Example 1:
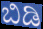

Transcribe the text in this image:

ಬಿಡಿ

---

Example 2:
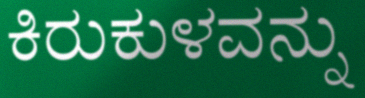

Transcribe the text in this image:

ಕಿರುಕುಳವನ್ನು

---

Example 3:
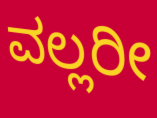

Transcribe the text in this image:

ವಲ್ಲರೀ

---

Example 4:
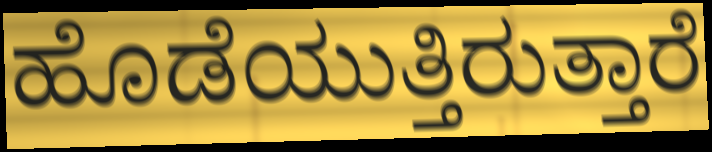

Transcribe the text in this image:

ಹೊಡೆಯುತ್ತಿರುತ್ತಾರೆ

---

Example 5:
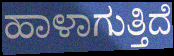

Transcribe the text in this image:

ಹಾಳಾಗುತ್ತಿದೆ